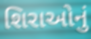
શિરાઓનું